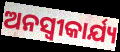
ଅନସ୍ବୀକାର୍ଯ୍ୟ